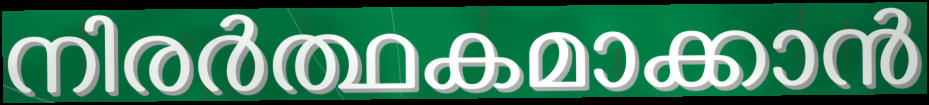
നിരർത്ഥകമാക്കാൻ